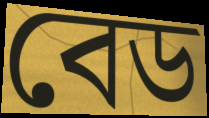
বেড